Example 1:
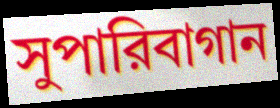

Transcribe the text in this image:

সুপারিবাগান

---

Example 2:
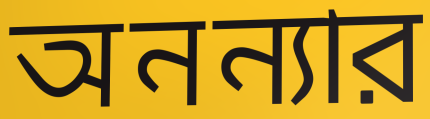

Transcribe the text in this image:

অনন্যার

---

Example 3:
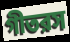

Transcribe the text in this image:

গীতরস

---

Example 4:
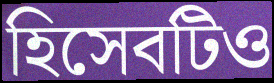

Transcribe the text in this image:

হিসেবটিও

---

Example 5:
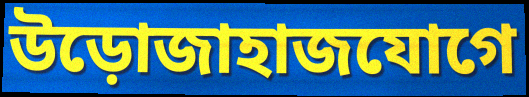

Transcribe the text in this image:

উড়োজাহাজযোগে